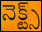
నెక్ట్స్